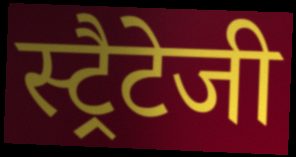
स्ट्रैटेजी